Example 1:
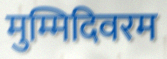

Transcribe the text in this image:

मुम्मिदिवरम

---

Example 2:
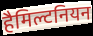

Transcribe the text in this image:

हैमिल्टनियन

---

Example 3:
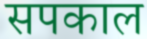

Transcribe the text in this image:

सपकाल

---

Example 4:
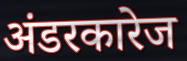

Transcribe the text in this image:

अंडरकारेज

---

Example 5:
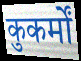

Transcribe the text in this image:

कुकर्मों